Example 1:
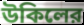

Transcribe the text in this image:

উকিলের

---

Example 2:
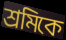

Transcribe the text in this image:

শ্রমিকে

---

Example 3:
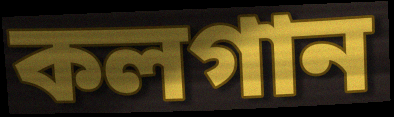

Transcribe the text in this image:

কলগান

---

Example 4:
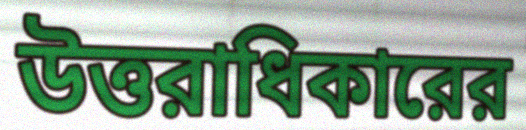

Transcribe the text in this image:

উত্তরাধিকারের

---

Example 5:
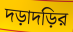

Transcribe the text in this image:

দড়াদড়ির